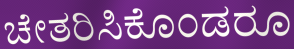
ಚೇತರಿಸಿಕೊಂಡರೂ